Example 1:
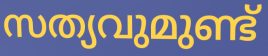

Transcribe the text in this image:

സത്യവുമുണ്ട്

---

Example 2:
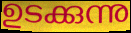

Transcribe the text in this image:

ഉടക്കുന്നു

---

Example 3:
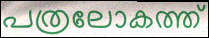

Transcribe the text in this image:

പത്രലോകത്ത്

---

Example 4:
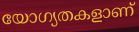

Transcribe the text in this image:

യോഗ്യതകളാണ്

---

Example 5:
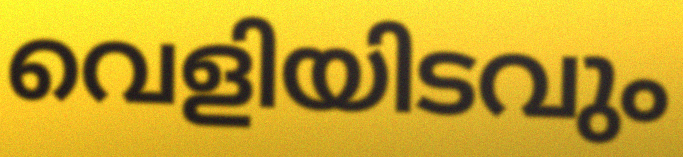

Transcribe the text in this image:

വെളിയിടവും